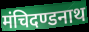
मंचिदण्डनाथ